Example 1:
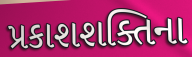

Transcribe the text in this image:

પ્રકાશશક્તિના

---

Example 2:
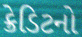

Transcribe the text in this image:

ક્રેડિટનો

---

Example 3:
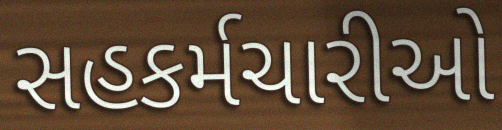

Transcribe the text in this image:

સહકર્મચારીઓ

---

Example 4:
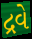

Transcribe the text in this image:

દ્રવે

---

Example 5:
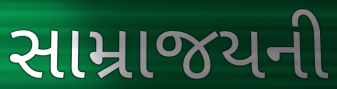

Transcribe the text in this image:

સામ્રાજયની